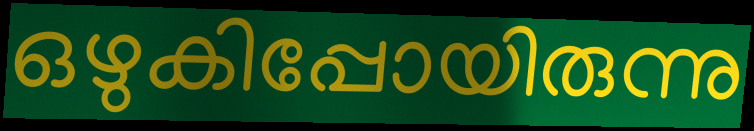
ഒഴുകിപ്പോയിരുന്നു